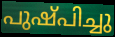
പുഷ്പിച്ചു